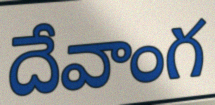
దేవాంగ